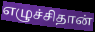
எழுச்சிதான்